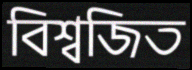
বিশ্বজিত